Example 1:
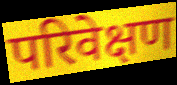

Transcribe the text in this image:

परिवेक्षण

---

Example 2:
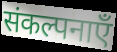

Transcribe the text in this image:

संकल्पनाएँ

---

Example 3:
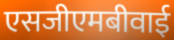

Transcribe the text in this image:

एसजीएमबीवाई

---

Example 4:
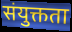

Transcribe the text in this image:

संयुक्तता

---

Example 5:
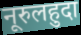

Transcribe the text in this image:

नूरुलहुदा